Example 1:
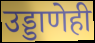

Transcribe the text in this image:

उड्डाणेही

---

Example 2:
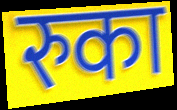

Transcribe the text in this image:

रुका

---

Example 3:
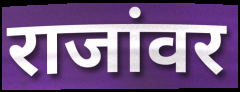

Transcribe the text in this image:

राजांवर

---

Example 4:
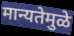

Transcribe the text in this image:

मान्यतेमुळे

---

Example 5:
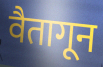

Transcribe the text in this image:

वैतागून